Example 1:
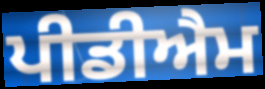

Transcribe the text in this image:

ਪੀਡੀਐਮ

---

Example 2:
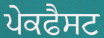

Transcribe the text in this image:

ਪੇਕਫੈਸਟ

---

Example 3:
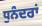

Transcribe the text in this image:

ਧੁਨੰਦਰਾਂ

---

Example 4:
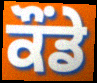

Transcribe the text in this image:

ਕੌਂਡੇ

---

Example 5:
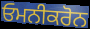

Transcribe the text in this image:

ਓਮਨੀਕਰੋਨ